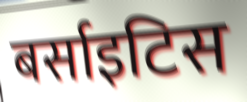
बर्साइटिस